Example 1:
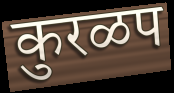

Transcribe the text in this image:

कुरळप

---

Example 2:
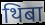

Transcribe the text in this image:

थिबा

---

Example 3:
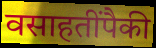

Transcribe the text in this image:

वसाहतींपैकी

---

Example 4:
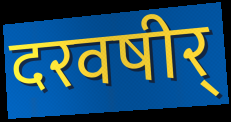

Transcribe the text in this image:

दरवषीर्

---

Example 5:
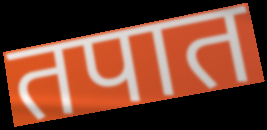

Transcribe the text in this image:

तपात